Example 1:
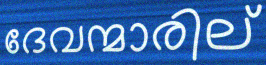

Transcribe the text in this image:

ദേവന്മാരില്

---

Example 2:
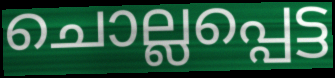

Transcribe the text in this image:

ചൊല്ലപ്പെട്ട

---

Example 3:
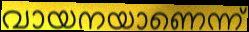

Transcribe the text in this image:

വായനയാണെന്ന്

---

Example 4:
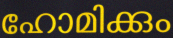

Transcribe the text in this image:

ഹോമിക്കും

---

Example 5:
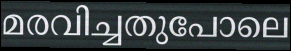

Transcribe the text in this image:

മരവിച്ചതുപോലെ